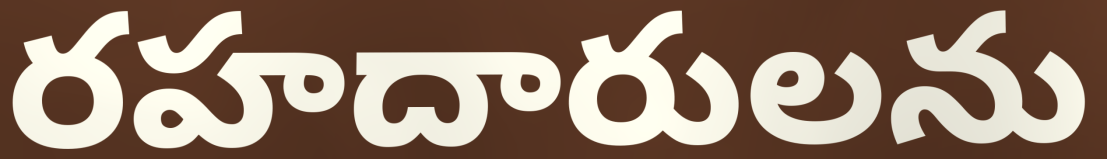
రహదారులను